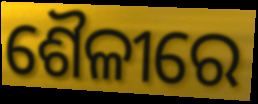
ଶୈଳୀରେ